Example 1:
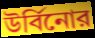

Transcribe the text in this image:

উর্বিনোর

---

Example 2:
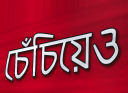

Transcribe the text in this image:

চেঁচিয়েও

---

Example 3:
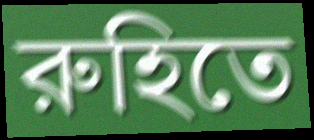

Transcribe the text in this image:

রুহিতে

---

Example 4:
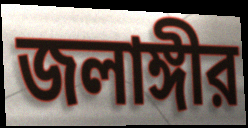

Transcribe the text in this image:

জলাঙ্গীর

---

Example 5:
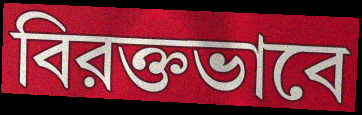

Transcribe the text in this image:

বিরক্তভাবে